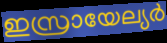
ഇസ്രായേല്യർ